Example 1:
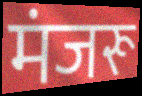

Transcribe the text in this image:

मंजरू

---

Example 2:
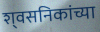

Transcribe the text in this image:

श्वसनिकांच्या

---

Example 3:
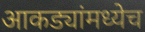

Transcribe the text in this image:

आकड्यांमध्येच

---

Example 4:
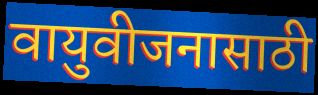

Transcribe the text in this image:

वायुवीजनासाठी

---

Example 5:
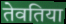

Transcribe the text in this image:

तेवतिया